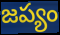
జప్యం